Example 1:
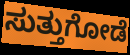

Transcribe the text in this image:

ಸುತ್ತುಗೋಡೆ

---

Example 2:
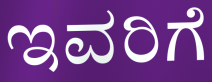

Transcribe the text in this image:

ಇವರಿಗೆ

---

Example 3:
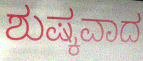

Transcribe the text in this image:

ಶುಷ್ಕವಾದ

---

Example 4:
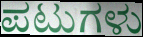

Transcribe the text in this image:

ಪಟುಗಳು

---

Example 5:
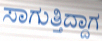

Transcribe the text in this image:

ಸಾಗುತ್ತಿದ್ದಾಗ